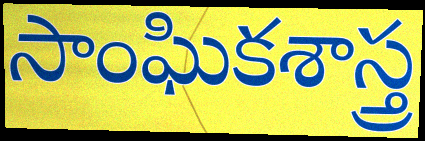
సాంఘికశాస్త్ర